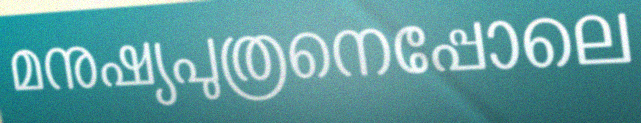
മനുഷ്യപുത്രനെപ്പോലെ